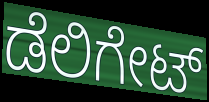
ಡೆಲಿಗೇಟ್